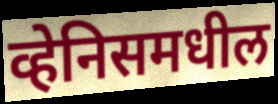
व्हेनिसमधील